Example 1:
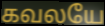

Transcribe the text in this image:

கவலயே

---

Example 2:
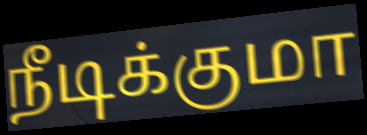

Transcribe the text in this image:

நீடிக்குமா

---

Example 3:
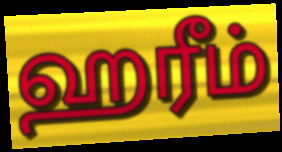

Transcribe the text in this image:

ஹரீம்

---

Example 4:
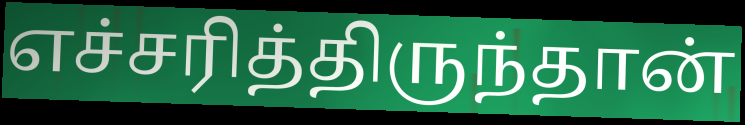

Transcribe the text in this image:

எச்சரித்திருந்தான்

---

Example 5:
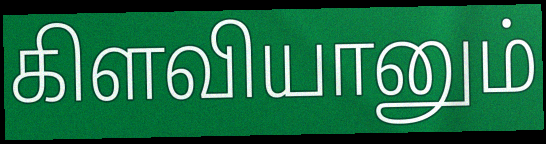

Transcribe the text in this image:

கிளவியானும்